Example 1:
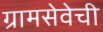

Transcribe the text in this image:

ग्रामसेवेची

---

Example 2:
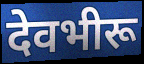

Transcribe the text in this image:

देवभीरू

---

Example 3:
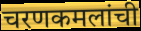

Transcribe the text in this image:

चरणकमलांची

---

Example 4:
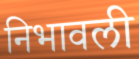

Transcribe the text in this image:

निभावली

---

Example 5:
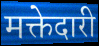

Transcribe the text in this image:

मक्तेदारी